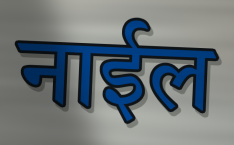
नाईल